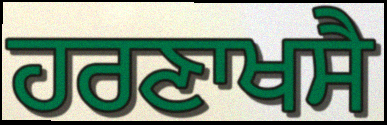
ਹਰਣਾਖਸੈ